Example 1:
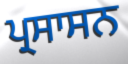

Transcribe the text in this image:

ਪ੍ਰਸਾਸਨ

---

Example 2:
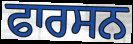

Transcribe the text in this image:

ਫਾਰਸਨ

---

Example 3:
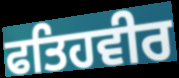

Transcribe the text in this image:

ਫਤਿਹਵੀਰ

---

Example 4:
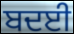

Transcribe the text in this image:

ਬਦਈ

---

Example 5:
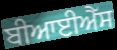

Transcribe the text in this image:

ਬੀਆਈਐੱਸ